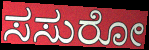
ಸಸುರೋ